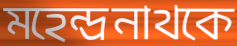
মহেন্দ্রনাথকে